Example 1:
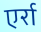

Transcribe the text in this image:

एर्रा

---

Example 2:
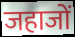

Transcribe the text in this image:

जहाजों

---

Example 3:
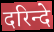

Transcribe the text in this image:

दरिन्दे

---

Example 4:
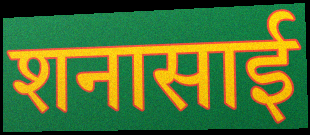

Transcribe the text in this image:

शनासाई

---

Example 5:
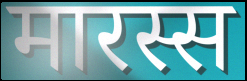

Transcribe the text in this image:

मारस्स